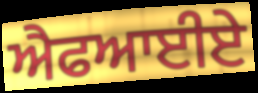
ਐਫਆਈਏ